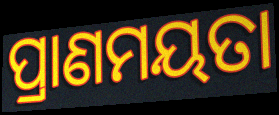
ପ୍ରାଣମୟତା